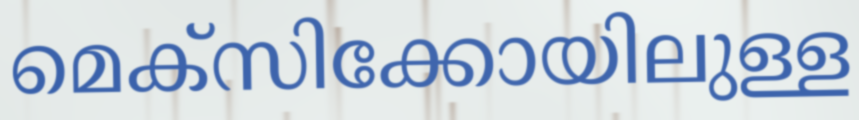
മെക്സിക്കോയിലുള്ള